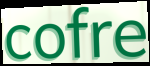
cofre